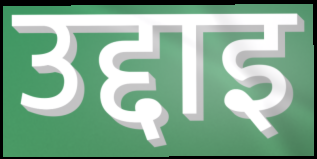
उद्दाइ